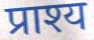
प्राश्य